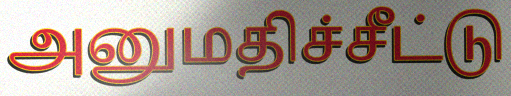
அனுமதிச்சீட்டு